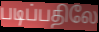
படிப்பதிலே